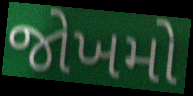
જોખમો